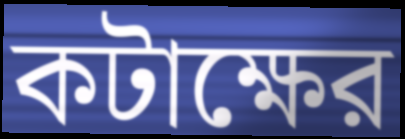
কটাক্ষের